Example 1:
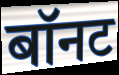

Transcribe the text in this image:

बॉनट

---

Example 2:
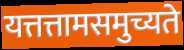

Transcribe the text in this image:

यत्तत्तामसमुच्यते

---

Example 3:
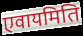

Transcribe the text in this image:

एवायमिति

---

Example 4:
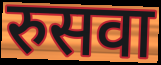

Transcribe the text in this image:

रुसवा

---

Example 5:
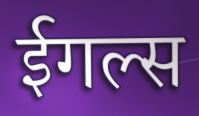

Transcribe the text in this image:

ईगल्स